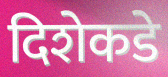
दिशेकडे